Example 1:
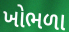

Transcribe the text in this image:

ખોભળા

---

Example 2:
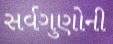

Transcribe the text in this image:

સર્વગુણોની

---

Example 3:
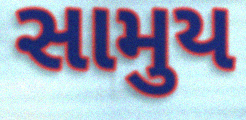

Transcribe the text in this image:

સામુય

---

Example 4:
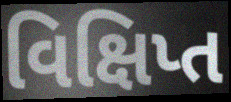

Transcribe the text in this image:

વિક્ષિપ્ત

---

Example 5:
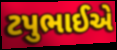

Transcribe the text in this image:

ટપુભાઈએ